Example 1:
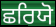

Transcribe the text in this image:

ਛਰਿਯੋ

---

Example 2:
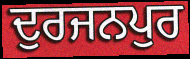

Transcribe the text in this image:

ਦੁਰਜਨਪੁਰ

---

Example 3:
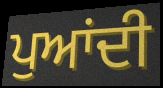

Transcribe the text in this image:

ਪੁਆਂਦੀ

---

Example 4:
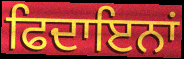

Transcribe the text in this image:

ਫਿਦਾਇਨਾਂ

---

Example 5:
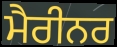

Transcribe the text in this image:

ਮੈਰੀਨਰ